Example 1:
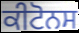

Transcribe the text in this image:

ਕੀਟੋਨਸ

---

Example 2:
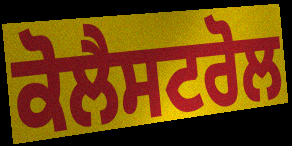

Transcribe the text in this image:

ਕੋਲੈਸਟਰੋਲ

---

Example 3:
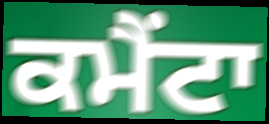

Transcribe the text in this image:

ਕਮੈਂਟਾ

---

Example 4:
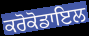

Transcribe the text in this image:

ਕਰੋਕੋਡਾਇਲ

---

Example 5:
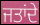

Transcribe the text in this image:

ਜਤਾਂਦੇ